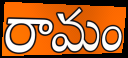
రామం